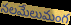
నలమేలుమంగ